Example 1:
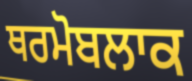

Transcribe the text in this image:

ਥਰਮੋਬਲਾਕ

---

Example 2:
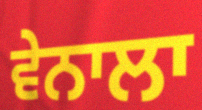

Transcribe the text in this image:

ਵੇਨਾਲਾ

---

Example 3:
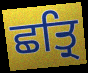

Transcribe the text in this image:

ਛਤ੍ਰਿ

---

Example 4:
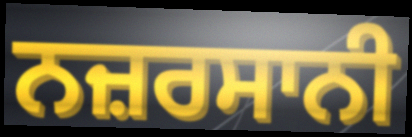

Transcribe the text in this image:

ਨਜ਼ਰਸਾਨੀ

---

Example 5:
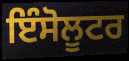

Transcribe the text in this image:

ਇੰਸੋਲੂਟਰ